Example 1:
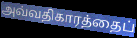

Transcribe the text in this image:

அவ்வதிகாரத்தைப்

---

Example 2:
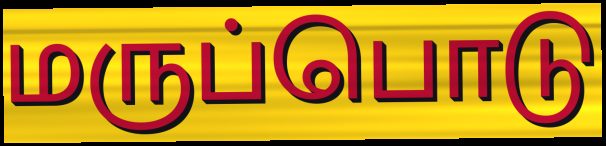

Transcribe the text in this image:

மருப்பொடு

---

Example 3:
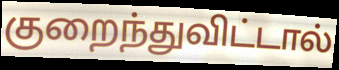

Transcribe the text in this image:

குறைந்துவிட்டால்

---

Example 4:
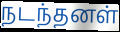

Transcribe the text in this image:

நடந்தனள்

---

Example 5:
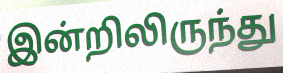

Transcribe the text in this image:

இன்றிலிருந்து